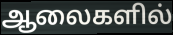
ஆலைகளில்